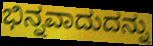
ಭಿನ್ನವಾದುದನ್ನು